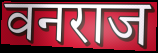
वनराज